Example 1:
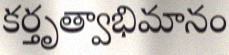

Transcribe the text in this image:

కర్తృత్వాభిమానం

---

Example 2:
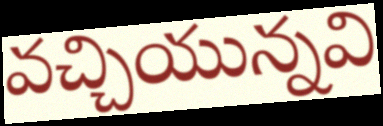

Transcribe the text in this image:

వచ్చియున్నవి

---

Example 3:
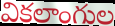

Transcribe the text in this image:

వికలాంగుల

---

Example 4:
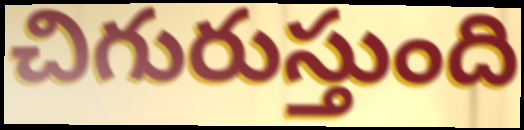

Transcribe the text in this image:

చిగురుస్తుంది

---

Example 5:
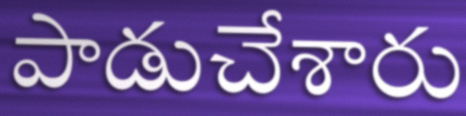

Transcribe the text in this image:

పాడుచేశారు